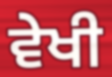
ਵੇਖੀ